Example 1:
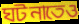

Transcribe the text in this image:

ঘটনাতেও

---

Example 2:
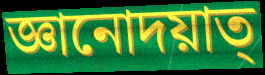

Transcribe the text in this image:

জ্ঞানোদয়াত্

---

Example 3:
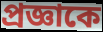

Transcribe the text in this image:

প্রজ্ঞাকে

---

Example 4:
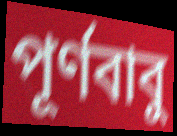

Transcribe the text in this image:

পূর্ণবাবু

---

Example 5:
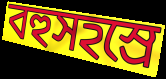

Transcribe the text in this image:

বহুসহস্রে